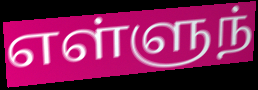
எள்ளுந்